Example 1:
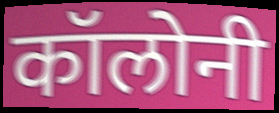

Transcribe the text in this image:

कॉलोनी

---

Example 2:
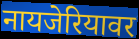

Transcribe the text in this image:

नायजेरियावर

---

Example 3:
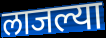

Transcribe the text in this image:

लाजल्या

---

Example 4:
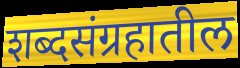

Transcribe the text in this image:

शब्दसंग्रहातील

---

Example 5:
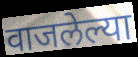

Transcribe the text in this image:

वाजलेल्या